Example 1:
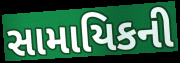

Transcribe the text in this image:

સામાયિકની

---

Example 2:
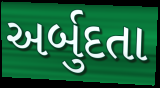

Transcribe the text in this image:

અર્બુદતા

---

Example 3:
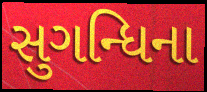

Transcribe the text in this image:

સુગન્ધિના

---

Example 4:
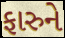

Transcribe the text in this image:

ફારુને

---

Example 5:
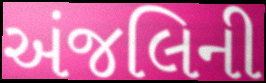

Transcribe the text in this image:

અંજલિની